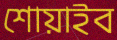
শোয়াইব